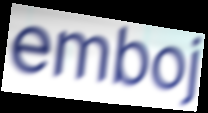
emboj